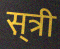
स़्त्री